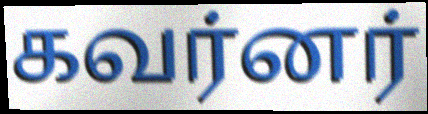
கவர்னர்